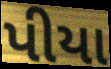
પીયા